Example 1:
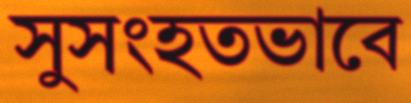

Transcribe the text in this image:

সুসংহতভাবে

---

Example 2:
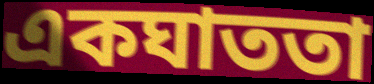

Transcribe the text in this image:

একঘাততা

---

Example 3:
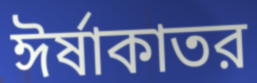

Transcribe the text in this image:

ঈর্ষাকাতর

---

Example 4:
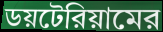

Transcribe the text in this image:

ডয়টেরিয়ামের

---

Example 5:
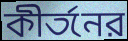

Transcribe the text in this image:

কীর্তনের